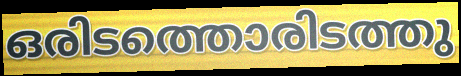
ഒരിടത്തൊരിടത്തു